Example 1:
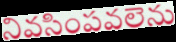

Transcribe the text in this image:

నివసింపవలెను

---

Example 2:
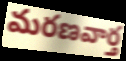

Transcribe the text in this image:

మరణవార్త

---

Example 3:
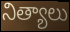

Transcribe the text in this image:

నిత్యాలు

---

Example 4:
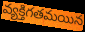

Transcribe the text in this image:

వ్యక్తిగతమయిన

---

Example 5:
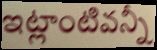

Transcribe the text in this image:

ఇట్లాంటివన్నీ